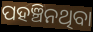
ପହଞ୍ଚିନଥିବା